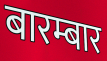
बारम्‍बार